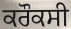
ਕਰੌਕਸੀ